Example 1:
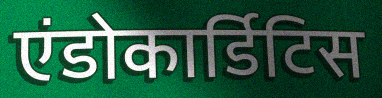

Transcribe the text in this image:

एंडोकार्डिटिस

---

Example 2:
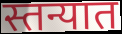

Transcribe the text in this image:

स्तन्यात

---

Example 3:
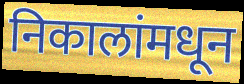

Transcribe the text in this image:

निकालांमधून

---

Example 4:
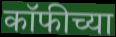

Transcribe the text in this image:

कॉफीच्या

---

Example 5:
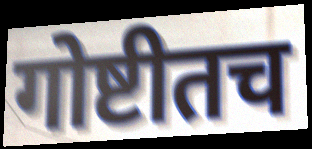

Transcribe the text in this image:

गोष्टीतच